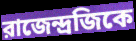
রাজেন্দ্রজিকে